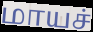
மாயச்